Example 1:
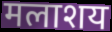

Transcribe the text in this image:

मलाशय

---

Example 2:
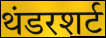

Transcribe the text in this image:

थंडरशर्ट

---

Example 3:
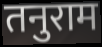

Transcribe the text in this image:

तनुराम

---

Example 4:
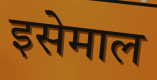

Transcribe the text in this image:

इसेमाल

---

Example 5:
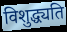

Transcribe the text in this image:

विशुद्ध्यति